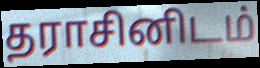
தராசினிடம்